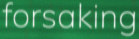
forsaking